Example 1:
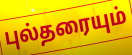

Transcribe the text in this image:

புல்தரையும்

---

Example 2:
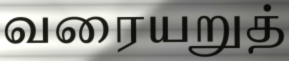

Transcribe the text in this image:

வரையறுத்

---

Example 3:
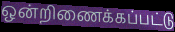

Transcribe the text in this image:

ஒன்றிணைக்கப்பட்டு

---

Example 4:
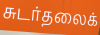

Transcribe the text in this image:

சுடர்தலைக்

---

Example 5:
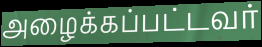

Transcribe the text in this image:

அழைக்கப்பட்டவர்